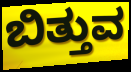
ಬಿತ್ತುವ